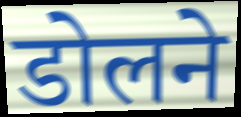
डोलने